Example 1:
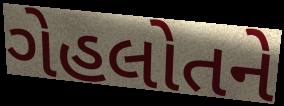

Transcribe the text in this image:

ગેહલોતને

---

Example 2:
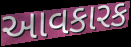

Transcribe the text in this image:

આવકારક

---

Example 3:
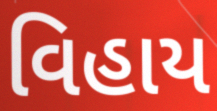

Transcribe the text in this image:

વિહાય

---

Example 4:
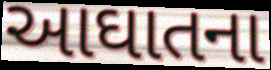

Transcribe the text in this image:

આઘાતના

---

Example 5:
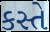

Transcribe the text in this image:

કસ્તે